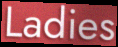
Ladies